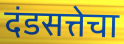
दंडसत्तेचा